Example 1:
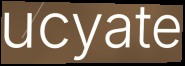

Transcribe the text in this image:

ucyate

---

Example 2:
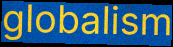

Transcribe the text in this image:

globalism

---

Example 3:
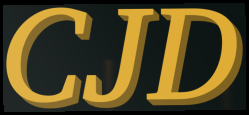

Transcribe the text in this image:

CJD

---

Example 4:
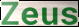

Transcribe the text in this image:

Zeus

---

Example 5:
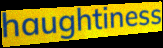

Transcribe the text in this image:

haughtiness